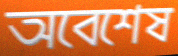
অবেশেষ